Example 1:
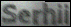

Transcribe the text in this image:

Serhii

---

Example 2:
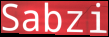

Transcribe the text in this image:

Sabzi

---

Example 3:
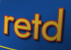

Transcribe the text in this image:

retd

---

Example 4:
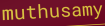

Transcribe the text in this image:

muthusamy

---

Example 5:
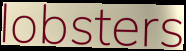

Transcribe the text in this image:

lobsters